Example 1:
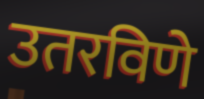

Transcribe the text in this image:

उतरविणे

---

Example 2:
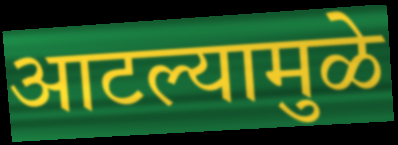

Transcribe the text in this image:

आटल्यामुळे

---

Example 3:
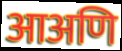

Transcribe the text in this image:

आअणि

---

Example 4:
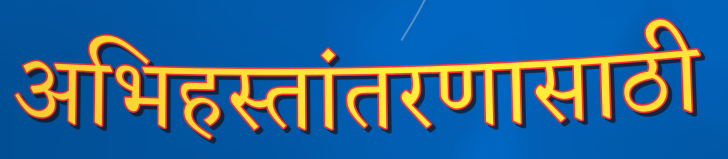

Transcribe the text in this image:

अभिहस्तांतरणासाठी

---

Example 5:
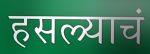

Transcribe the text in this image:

हसल्याचं